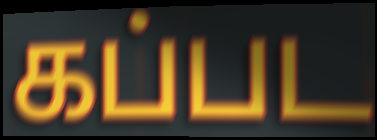
கப்பட